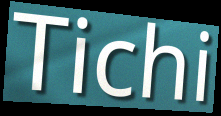
Tichi